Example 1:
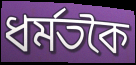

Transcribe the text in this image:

ধৰ্মতকৈ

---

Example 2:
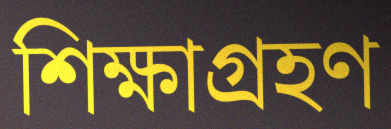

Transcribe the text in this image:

শিক্ষাগ্ৰহণ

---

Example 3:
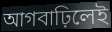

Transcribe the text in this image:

আগবাঢ়িলেই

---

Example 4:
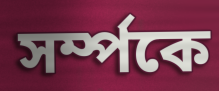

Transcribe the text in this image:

সৰ্ম্পকে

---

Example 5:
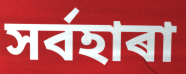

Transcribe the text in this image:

সৰ্বহাৰা